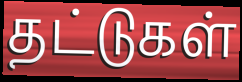
தட்டுகள்